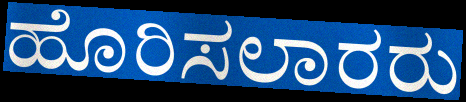
ಹೊರಿಸಲಾರರು